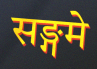
सङ्गमे